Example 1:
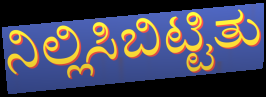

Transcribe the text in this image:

ನಿಲ್ಲಿಸಿಬಿಟ್ಟಿತು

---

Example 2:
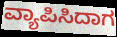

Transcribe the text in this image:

ವ್ಯಾಪಿಸಿದಾಗ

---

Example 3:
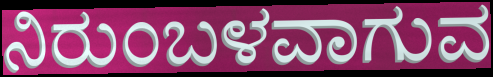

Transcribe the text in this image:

ನಿರುಂಬಳವಾಗುವ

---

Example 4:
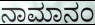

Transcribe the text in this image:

ನಾಮಾನಂ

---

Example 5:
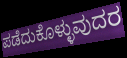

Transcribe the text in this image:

ಪಡೆದುಕೊಳ್ಳುವುದರ